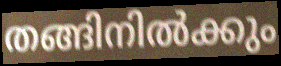
തങ്ങിനിൽക്കും